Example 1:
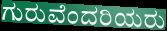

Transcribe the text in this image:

ಗುರುವೆಂದರಿಯರು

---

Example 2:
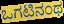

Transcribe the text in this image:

ಒಗಟಿನಂಥ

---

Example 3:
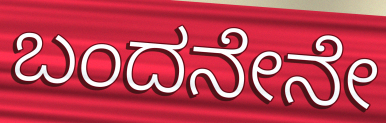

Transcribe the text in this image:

ಬಂದನೇನೇ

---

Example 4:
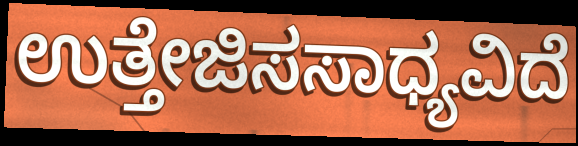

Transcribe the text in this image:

ಉತ್ತೇಜಿಸಸಾಧ್ಯವಿದೆ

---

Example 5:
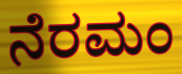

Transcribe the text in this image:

ನೆರಮಂ